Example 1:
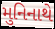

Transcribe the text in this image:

મુનિનાથે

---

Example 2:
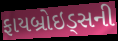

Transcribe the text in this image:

ફાયબ્રોઇડ્સની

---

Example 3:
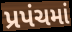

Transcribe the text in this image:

પ્રપંચમાં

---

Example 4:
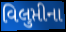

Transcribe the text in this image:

વિલુપ્તીના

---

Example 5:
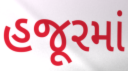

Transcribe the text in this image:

હજૂરમાં